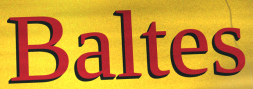
Baltes